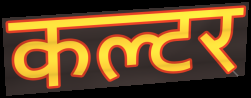
कल्टर